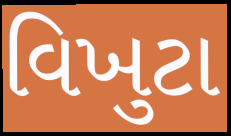
વિખુટા